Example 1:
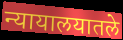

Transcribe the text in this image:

न्यायालयातले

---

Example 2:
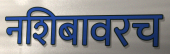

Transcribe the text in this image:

नशिबावरच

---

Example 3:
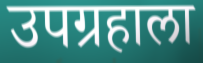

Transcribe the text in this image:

उपग्रहाला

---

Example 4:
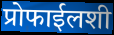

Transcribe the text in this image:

प्रोफाईलशी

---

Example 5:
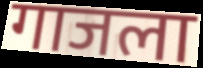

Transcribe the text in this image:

गाजला